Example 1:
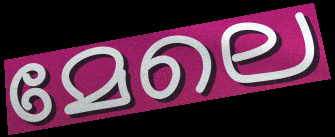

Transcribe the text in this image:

മേലെ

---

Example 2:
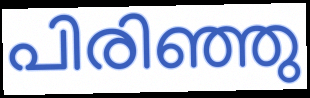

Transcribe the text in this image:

പിരിഞ്ഞു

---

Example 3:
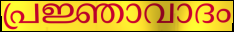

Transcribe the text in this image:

പ്രജ്ഞാവാദം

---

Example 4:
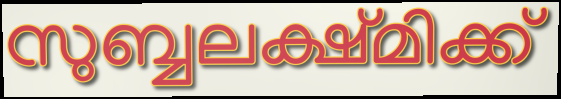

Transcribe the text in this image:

സുബ്ബലക്ഷ്മിക്ക്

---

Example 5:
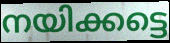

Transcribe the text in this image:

നയിക്കട്ടെ